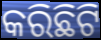
କରିଛିଟି